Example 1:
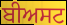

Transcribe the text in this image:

ਬੀਅਸਟ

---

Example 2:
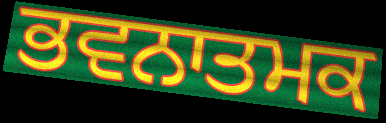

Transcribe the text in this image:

ਭਵਨਾਤਮਕ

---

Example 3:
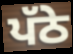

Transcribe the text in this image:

ਪੱਠੇ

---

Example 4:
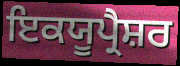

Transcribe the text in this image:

ਇਕਯੂਪ੍ਰੈਸ਼ਰ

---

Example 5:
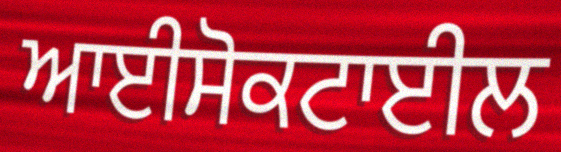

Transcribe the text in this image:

ਆਈਸੋਕਟਾਈਲ